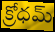
క్రోధమ్